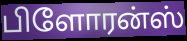
பிளோரன்ஸ்